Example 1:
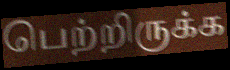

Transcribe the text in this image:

பெற்றிருக்க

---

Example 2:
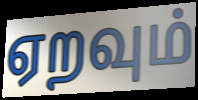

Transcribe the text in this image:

ஏறவும்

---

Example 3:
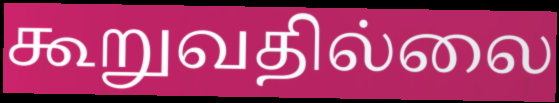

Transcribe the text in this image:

கூறுவதில்லை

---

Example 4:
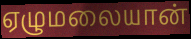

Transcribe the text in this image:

ஏழுமலையான்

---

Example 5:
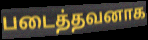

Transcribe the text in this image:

படைத்தவனாக